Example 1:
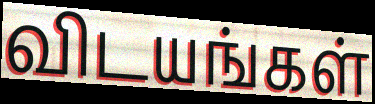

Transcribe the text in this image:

விடயங்கள்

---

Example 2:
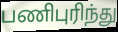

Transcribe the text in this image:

பணிபுரிந்து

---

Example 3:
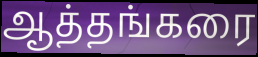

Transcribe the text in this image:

ஆத்தங்கரை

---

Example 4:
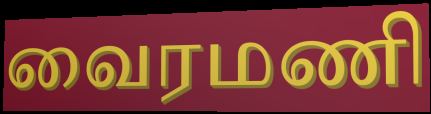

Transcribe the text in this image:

வைரமணி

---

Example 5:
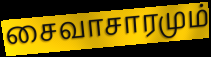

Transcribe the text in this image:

சைவாசாரமும்